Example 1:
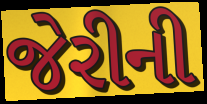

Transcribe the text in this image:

જેરીની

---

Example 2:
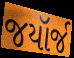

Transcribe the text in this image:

જયૉર્જ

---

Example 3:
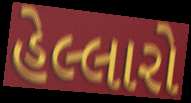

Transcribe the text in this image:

હેલ્લારો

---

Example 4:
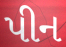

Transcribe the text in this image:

પીન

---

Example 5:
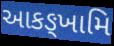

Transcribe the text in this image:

આકઙ્ખામિ